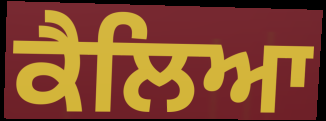
ਕੈਲਿਆ